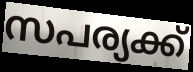
സപര്യക്ക്